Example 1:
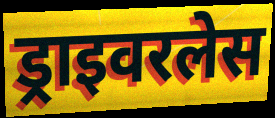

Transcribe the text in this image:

ड्राइवरलेस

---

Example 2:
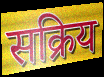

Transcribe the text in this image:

सक्रिय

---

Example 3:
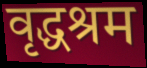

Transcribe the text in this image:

वृद्धश्रम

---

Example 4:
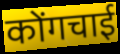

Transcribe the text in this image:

कोंगचाई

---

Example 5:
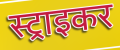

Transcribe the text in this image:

स्ट्राइकर